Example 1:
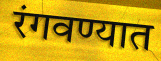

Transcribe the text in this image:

रंगवण्यात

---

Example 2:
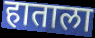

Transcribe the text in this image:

हाताला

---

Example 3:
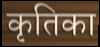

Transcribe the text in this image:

कृतिका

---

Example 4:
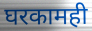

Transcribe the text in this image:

घरकामही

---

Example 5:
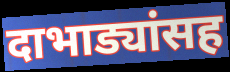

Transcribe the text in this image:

दाभाड्यांसह